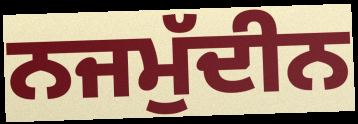
ਨਜਮੁੱਦੀਨ